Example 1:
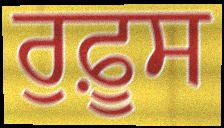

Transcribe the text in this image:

ਰੁਫ਼ੂਸ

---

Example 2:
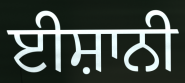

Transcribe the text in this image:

ਈਸ਼ਾਨੀ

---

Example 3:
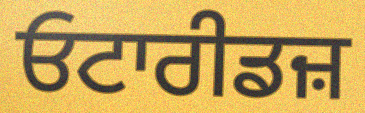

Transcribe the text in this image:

ਓਟਾਰੀਡਜ਼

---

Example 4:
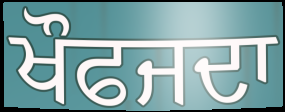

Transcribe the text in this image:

ਖੌਫਜਦਾ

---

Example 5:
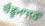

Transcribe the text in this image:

ਚੰਡੂਮਾਜਰਾ